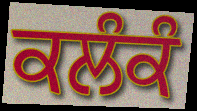
ਕਲੰਕੰ